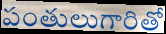
పంతులుగారితో